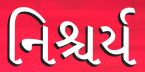
નિશ્ચર્ય